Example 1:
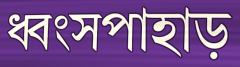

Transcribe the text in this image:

ধ্বংসপাহাড়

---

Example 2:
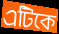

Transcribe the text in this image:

এটিকে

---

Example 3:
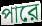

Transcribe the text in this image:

পারে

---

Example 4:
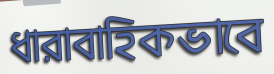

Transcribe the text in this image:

ধারাবাহিকভাবে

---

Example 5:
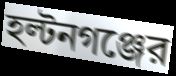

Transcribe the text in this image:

হল্টনগঞ্জের